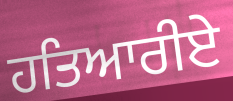
ਹਤਿਆਰੀਏ